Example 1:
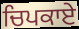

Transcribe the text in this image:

ਚਿਪਕਾਏ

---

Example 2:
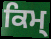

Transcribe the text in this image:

ਕਿਮ੍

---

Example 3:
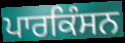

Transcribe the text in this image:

ਪਾਰਕਿੰਸਨ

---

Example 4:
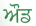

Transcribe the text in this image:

ਔਡ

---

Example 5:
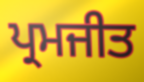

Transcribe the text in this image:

ਪ੍ਰਮਜੀਤ